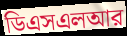
ডিএসএলআর